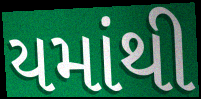
યમાંથી